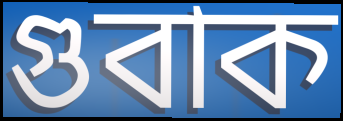
গুবাক